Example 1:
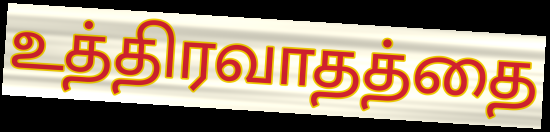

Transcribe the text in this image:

உத்திரவாதத்தை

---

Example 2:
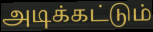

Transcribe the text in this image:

அடிக்கட்டும்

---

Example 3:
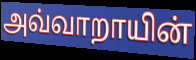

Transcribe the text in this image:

அவ்வாறாயின்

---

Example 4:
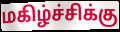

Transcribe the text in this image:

மகிழ்ச்சிக்கு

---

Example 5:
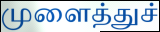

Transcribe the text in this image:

முளைத்துச்